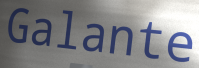
Galante